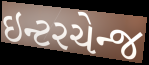
ઇન્ટરચેન્જ